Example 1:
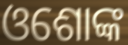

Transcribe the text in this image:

ଓଶୋଙ୍କ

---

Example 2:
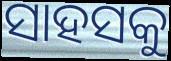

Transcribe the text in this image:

ସାହସକୁ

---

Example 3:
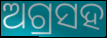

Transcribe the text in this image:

ଅଗ୍ରସହ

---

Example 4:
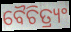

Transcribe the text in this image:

ବୈଚିତ୍ର୍ୟଂ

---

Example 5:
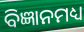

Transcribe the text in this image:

ବିଜ୍ଞାନମଧ୍ୟ